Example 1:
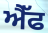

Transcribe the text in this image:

ਐੈੱਫ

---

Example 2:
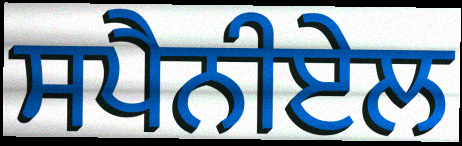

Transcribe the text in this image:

ਸਪੈਨੀਏਲ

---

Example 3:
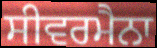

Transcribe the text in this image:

ਸੀਵਰਮੈਨਾ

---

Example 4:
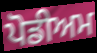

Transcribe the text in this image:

ਪੋਡੀਅਮ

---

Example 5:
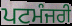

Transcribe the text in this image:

ਪਟਮੰਜਰੀ